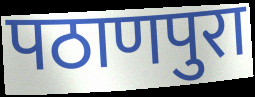
पठाणपुरा